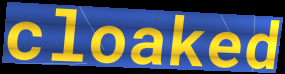
cloaked